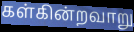
கள்கின்றவாறு